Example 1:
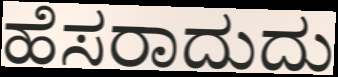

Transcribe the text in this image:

ಹೆಸರಾದುದು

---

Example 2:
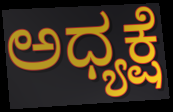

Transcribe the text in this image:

ಅಧ್ಯಕ್ಷೆ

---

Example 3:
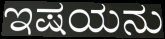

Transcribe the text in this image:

ಇಷಯನು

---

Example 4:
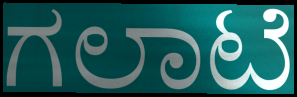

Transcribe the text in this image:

ಗಲಾಟೆ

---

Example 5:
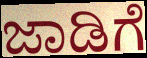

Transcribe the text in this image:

ಜಾಡಿಗೆ